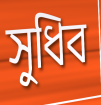
সুধিব